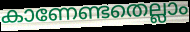
കാണേണ്ടതെല്ലാം